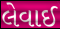
લેવાઈ